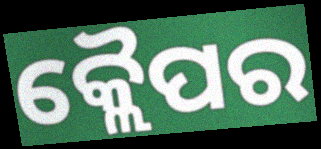
କ୍ଲୈପର